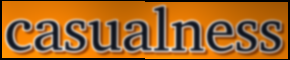
casualness